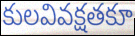
కులవివక్షతకూ